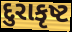
દુરાકૃષ્ટ